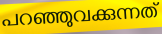
പറഞ്ഞുവക്കുന്നത്